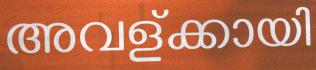
അവള്ക്കായി